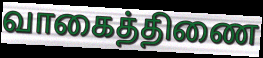
வாகைத்திணை